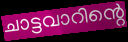
ചാട്ടവാറിന്റെ